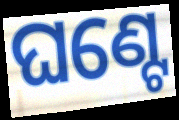
ଘଣ୍ଟେ